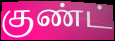
குண்ட்